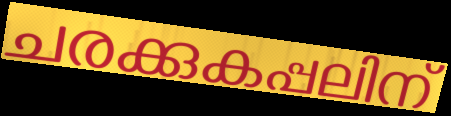
ചരക്കുകപ്പലിന്